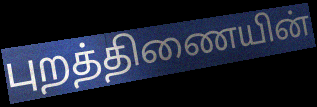
புறத்திணையின்